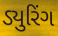
ડ્યુરિંગ